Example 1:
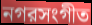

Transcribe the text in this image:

নগরসংগীত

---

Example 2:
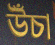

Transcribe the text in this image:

উঁচা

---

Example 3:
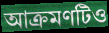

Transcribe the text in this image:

আক্রমণটিও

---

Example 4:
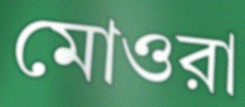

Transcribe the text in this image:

মোওরা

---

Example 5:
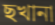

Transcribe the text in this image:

ছখানা